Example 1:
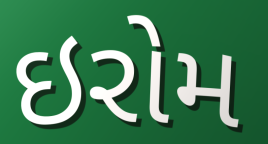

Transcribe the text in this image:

ઇરોમ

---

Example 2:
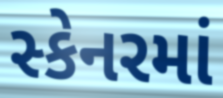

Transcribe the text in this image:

સ્કેનરમાં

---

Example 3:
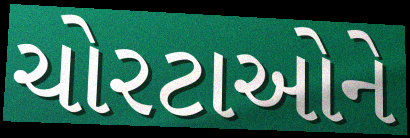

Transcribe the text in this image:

ચોરટાઓને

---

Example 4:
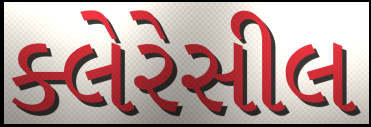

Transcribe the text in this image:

ક્લેરેસીલ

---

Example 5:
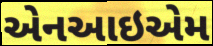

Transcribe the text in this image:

એનઆઇએમ